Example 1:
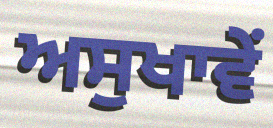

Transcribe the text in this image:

ਅਸੁਖਾਵੇਂ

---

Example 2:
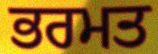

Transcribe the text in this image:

ਭਰਮਤ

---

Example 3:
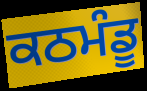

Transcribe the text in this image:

ਕਠਮੰਡੂ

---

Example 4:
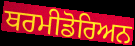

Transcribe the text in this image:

ਥਰਮੀਡੋਰਿਅਨ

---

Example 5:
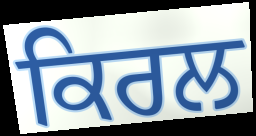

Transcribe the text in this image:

ਕਿਰਲ